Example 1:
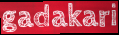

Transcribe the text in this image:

gadakari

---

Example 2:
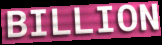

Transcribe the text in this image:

BILLION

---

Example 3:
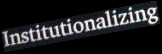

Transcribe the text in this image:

Institutionalizing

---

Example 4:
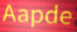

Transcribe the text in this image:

Aapde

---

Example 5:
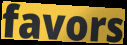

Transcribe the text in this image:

favors